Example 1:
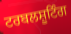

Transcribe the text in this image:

ਟਰਬਲਸ਼ੂਟਿੰਗ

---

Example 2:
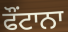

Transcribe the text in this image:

ਫੌਂਟਾਨਾ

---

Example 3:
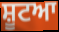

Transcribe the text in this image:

ਸ਼ੂਟਆ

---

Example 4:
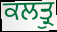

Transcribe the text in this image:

ਕਲਤ੍ਰੁ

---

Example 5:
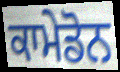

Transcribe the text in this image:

ਕਾਮੇਡੋਨ